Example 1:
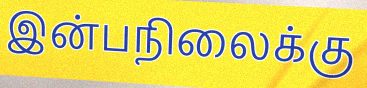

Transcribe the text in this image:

இன்பநிலைக்கு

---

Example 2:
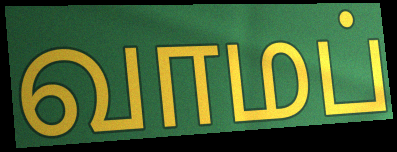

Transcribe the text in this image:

வாமப்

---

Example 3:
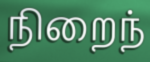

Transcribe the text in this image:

நிறைந்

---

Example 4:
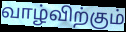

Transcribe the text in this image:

வாழ்விற்கும்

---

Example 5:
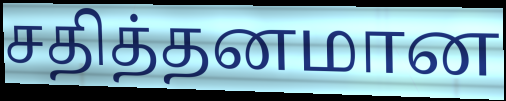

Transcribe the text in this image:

சதித்தனமான